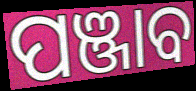
ପଞ୍ଜାବ